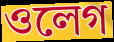
ওলেগ